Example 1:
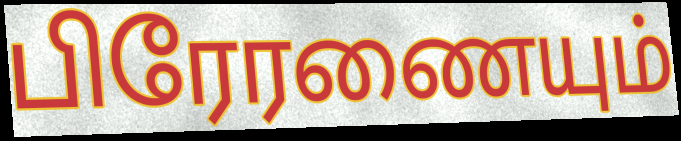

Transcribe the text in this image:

பிரேரணையும்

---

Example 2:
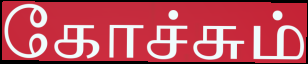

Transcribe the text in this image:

கோச்சும்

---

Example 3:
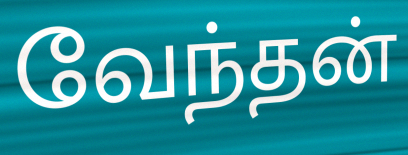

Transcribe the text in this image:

வேந்தன்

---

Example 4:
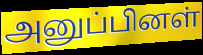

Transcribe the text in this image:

அனுப்பினள்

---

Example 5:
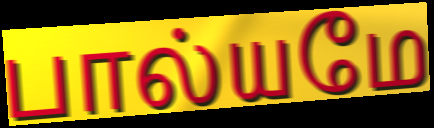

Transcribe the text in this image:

பால்யமே